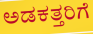
ಅಡಕತ್ತರಿಗೆ